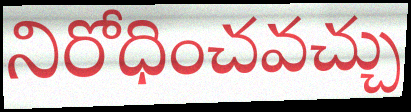
నిరోధించవచ్చు